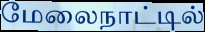
மேலைநாட்டில்